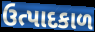
ઉત્પાદકાળ